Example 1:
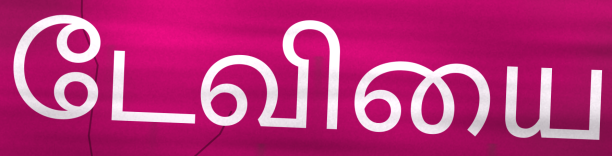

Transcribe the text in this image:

டேவியை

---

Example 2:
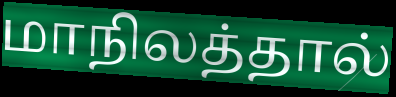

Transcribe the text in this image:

மாநிலத்தால்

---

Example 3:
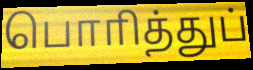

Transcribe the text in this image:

பொரித்துப்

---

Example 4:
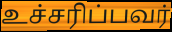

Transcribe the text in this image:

உச்சரிப்பவர்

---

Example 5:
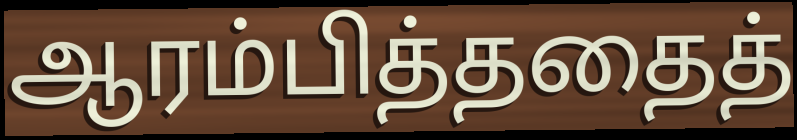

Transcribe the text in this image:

ஆரம்பித்ததைத்